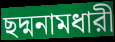
ছদ্মনামধারী